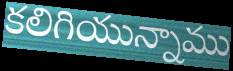
కలిగియున్నాము